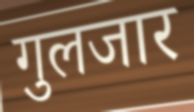
गुलजार